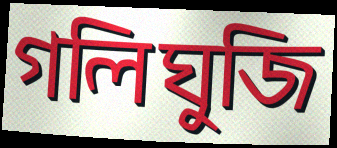
গলিঘুজি